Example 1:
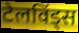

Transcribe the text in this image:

टेलविंड्स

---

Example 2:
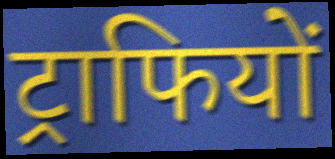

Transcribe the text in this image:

ट्राफियों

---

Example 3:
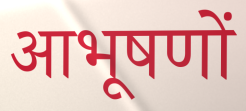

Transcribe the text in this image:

आभूषणों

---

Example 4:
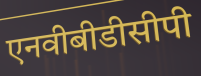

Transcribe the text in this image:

एनवीबीडीसीपी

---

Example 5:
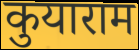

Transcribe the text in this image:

कुयाराम